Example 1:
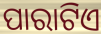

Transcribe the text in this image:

ପାରାଟିଏ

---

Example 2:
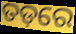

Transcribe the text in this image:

ତଡ଼ରେ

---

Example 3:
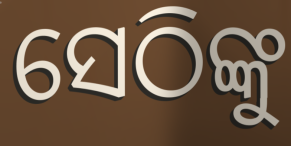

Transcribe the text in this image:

ସେଠିଙ୍କୁ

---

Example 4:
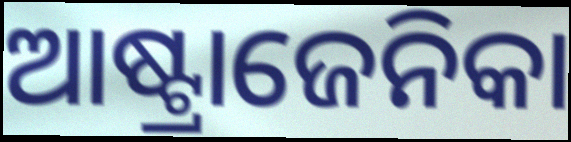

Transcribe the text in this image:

ଆଷ୍ଟ୍ରାଜେନିକା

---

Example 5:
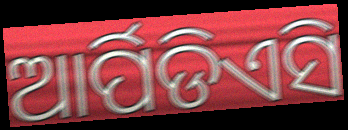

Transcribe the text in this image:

ଆର୍ପିଡିଏସି